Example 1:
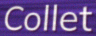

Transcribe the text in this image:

Collet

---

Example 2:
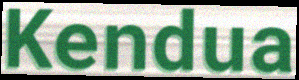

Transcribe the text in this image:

Kendua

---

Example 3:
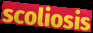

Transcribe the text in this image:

scoliosis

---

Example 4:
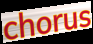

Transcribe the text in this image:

chorus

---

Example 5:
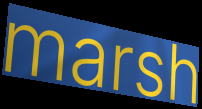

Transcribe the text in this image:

marsh